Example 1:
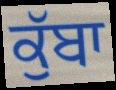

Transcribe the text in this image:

ਕੁੱਬਾ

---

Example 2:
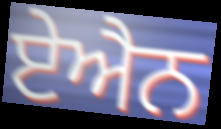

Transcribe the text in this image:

ਏਐਨ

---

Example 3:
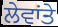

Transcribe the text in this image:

ਲੇਵਾਂਤੇ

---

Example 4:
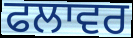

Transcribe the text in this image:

ਫਲਾਵਰ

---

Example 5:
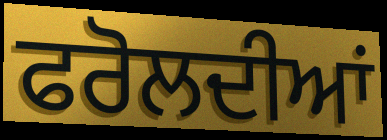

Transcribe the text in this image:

ਫਰੋਲਦੀਆਂ